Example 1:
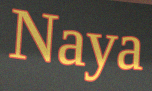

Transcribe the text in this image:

Naya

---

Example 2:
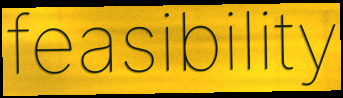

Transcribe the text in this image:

feasibility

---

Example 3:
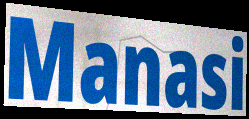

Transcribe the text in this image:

Manasi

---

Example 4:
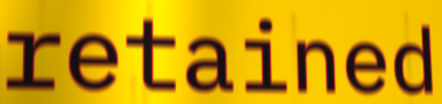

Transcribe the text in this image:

retained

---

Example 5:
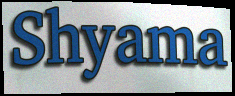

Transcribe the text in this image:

Shyama